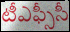
టీఎఫ్సీసీ